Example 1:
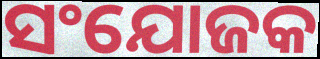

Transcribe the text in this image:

ସଂଯୋଜକ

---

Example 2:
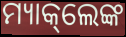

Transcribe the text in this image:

ମ୍ୟାକ୍‌ଲେଙ୍କ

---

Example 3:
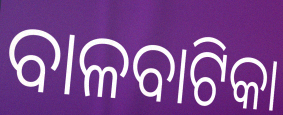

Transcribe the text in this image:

ବାଳବାଟିକା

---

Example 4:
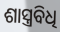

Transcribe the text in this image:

ଶାସ୍ତ୍ରବିଧି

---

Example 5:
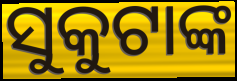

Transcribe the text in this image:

ସୁକୁଟାଙ୍କ